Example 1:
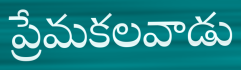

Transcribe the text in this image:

ప్రేమకలవాడు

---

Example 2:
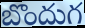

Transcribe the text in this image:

బొందుగ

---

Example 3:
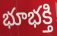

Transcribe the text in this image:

భూభక్తి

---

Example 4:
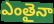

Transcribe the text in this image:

ఎంతైనా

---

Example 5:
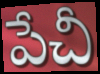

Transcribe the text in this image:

పేచీ